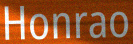
Honrao